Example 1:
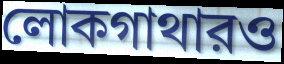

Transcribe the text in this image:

লোকগাথারও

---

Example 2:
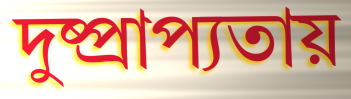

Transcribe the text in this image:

দুষ্প্রাপ্যতায়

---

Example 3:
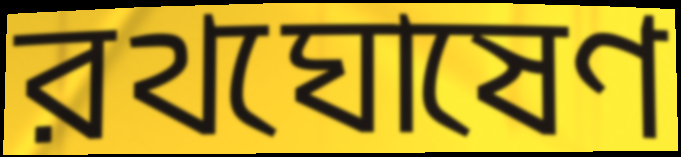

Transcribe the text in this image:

রথঘোষেণ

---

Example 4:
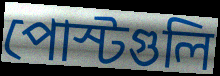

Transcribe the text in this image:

পোস্টগুলি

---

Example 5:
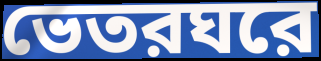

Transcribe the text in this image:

ভেতরঘরে